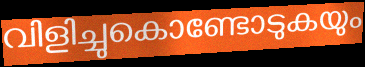
വിളിച്ചുകൊണ്ടോടുകയും